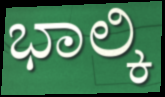
ಭಾಲ್ಕಿ